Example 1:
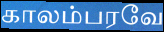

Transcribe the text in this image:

காலம்பரவே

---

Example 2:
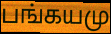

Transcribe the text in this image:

பங்கயமு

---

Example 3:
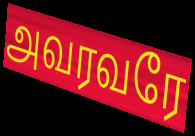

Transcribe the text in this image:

அவரவரே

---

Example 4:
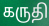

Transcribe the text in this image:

கருதி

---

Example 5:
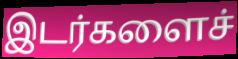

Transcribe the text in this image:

இடர்களைச்